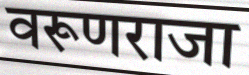
वरूणराजा